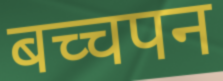
बच्चपन